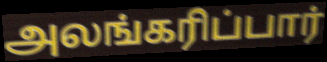
அலங்கரிப்பார்